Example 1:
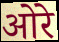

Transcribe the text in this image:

ओरे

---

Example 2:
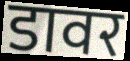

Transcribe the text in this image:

डावर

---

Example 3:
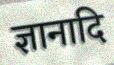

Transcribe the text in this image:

ज्ञानादि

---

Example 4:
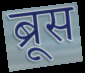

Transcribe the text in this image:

ब्रूस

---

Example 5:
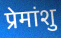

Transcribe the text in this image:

प्रेमांशु